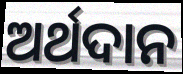
ଅର୍ଥଦାନ